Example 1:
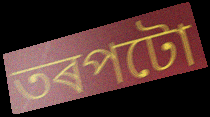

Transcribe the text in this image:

তৰপটো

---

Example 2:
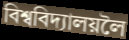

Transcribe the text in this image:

বিশ্ববিদ্যালয়লৈ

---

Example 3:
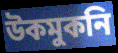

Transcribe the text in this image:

উকমুকনি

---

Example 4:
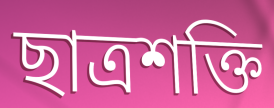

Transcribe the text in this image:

ছাত্ৰশক্তি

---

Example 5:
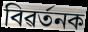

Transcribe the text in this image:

বিৱৰ্তনক